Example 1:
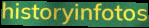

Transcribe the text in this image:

historyinfotos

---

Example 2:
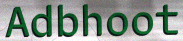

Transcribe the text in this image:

Adbhoot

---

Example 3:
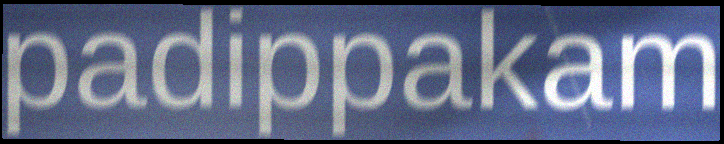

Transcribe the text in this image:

padippakam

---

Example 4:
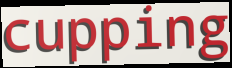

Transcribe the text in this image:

cupping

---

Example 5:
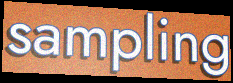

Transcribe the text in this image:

sampling